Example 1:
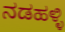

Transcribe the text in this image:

ನಡಹಳ್ಳಿ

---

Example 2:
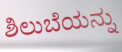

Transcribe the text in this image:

ಶಿಲುಬೆಯನ್ನು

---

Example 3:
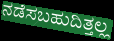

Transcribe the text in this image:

ನಡೆಸಬಹುದಿತ್ತಲ್ಲ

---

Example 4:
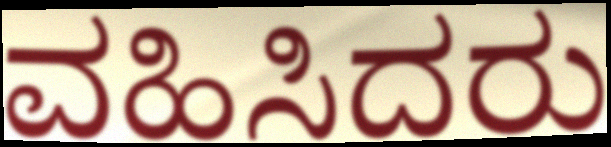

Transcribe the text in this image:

ವಹಿಸಿದರು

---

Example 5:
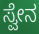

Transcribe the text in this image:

ಸ್ವೇನ